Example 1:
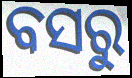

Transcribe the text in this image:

ବସରୁ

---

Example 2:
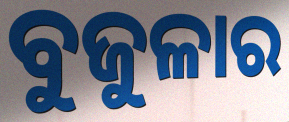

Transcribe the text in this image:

ବୁଜୁଳାର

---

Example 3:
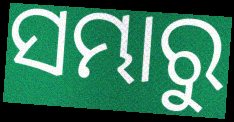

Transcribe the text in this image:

ସମ୍ଭାରୁ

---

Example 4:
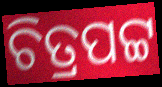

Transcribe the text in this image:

ଚିତ୍ରପଟ୍ଟ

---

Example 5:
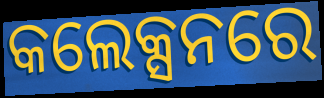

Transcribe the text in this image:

କଲେକ୍ସନରେ